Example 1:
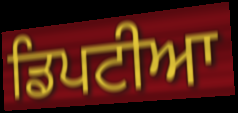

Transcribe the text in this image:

ਡਿਪਟੀਆ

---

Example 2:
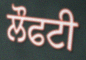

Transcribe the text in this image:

ਲੌਫਟੀ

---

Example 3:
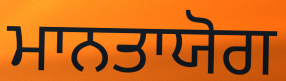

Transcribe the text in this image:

ਮਾਨਤਾਯੋਗ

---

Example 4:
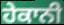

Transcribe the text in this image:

ਹੇਕਾਨੀ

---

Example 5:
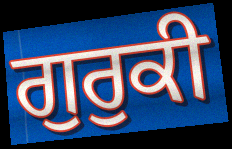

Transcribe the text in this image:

ਗੁਰੁਕੀ